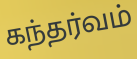
கந்தர்வம்